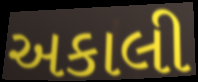
અકાલી